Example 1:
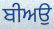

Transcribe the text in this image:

ਬੀਅਉ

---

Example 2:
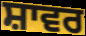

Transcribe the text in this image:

ਸ਼ਾਵਰ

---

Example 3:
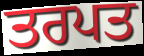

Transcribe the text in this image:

ਤਰਪਤ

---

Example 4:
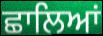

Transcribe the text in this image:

ਛਾਲਿਆਂ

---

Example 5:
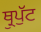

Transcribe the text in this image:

ਥ੍ਰੁਪੁੱਟ